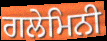
ਗਲੇਮਿਨੀ